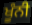
ਖੂੰਨੀ